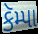
કૅમ્પા